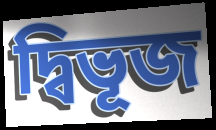
দ্বিভূজ